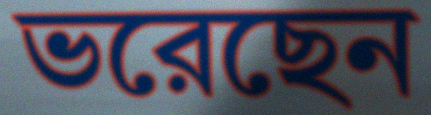
ভরেছেন